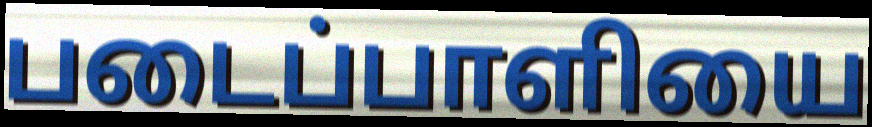
படைப்பாளியை